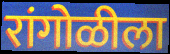
रांगोळीला